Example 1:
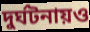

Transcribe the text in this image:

দুর্ঘটনায়ও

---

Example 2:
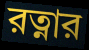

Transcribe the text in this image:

রত্নার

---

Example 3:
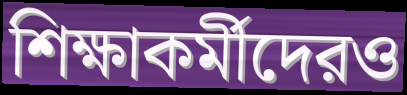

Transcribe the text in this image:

শিক্ষাকর্মীদেরও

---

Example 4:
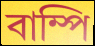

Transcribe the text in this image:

বাম্পি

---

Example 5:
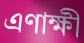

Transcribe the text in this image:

এণাক্ষী